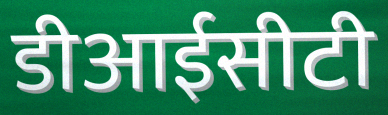
डीआईसीटी